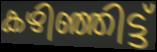
കഴിഞ്ഞിട്ട്